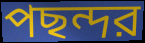
পছন্দর